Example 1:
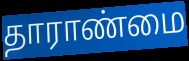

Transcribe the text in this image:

தாராண்மை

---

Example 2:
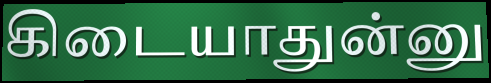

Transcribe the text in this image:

கிடையாதுன்னு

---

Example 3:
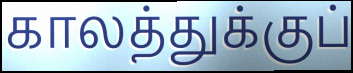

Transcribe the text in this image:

காலத்துக்குப்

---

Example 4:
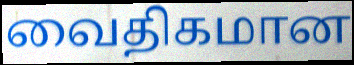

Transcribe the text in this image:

வைதிகமான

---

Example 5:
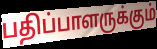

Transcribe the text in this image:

பதிப்பாளருக்கும்